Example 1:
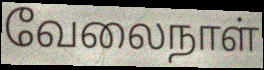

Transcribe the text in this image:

வேலைநாள்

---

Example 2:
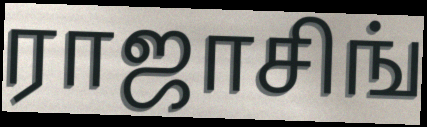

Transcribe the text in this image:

ராஜாசிங்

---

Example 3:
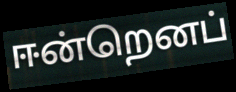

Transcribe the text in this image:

ஈன்றெனப்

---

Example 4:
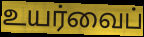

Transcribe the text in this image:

உயர்வைப்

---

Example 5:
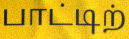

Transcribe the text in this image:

பாட்டிற்